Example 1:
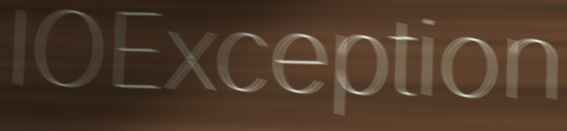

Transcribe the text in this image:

IOException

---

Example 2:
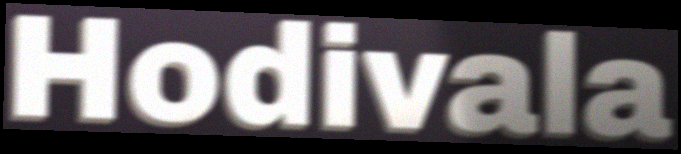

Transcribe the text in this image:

Hodivala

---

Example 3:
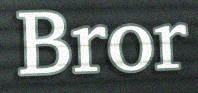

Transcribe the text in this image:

Bror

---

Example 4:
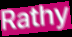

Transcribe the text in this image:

Rathy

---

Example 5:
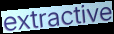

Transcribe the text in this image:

extractive